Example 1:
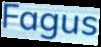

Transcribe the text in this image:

Fagus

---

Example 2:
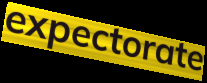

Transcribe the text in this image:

expectorate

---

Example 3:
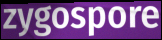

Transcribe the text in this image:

zygospore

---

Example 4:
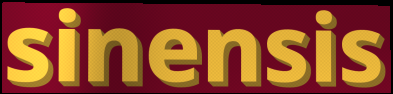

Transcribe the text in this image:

sinensis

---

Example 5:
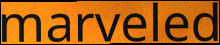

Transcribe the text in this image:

marveled